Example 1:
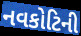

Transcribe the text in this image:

નવકોટિની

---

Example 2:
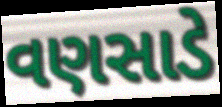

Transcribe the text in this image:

વણસાડે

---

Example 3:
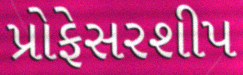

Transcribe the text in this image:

પ્રોફેસરશીપ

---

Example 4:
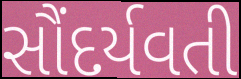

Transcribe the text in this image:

સૌંદર્યવતી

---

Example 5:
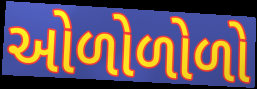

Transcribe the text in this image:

ઓળોળોળો